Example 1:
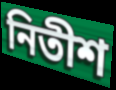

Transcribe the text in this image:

নিতীশ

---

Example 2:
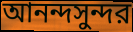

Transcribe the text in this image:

আনন্দসুন্দর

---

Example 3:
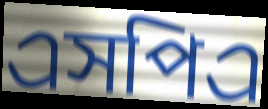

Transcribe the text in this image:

এসপিএ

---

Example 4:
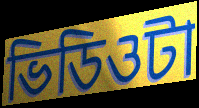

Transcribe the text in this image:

ভিডিওটা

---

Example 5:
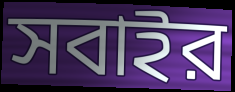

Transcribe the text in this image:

সবাইর